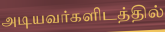
அடியவர்களிடத்தில்